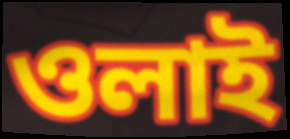
ওলাই